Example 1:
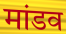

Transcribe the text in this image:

मांडव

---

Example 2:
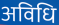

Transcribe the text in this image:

अविधि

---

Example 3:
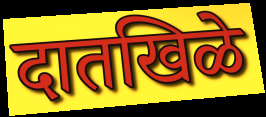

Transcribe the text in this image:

दातखिळे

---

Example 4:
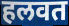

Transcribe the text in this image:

हलवत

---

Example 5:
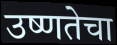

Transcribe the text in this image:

उष्णतेचा